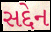
સદ્દેન